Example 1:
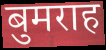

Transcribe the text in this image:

बुमराह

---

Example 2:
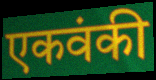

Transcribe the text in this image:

एकवंकी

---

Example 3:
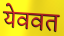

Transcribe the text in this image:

येववत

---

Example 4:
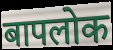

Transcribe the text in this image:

बापलोक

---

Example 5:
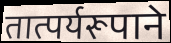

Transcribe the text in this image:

तात्पर्यरूपाने